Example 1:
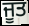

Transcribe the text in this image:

ਜੂਤ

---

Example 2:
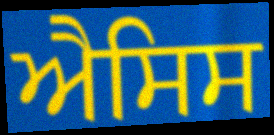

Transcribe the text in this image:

ਐਸਿਸ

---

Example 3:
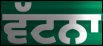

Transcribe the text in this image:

ਵੱਟਨਾ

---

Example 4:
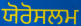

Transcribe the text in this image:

ਯੋਰੋਸਲਮ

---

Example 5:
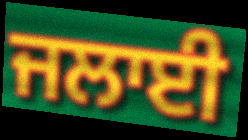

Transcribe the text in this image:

ਜਲਾਈ